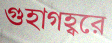
গুহাগহ্বরে